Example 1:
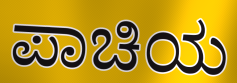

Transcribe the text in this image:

ಪಾಚಿಯ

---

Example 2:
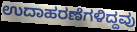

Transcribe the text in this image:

ಉದಾಹರಣೆಗಳಿದ್ದವು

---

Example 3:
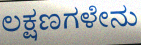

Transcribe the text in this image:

ಲಕ್ಷಣಗಳೇನು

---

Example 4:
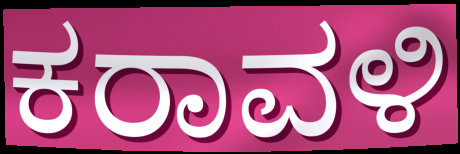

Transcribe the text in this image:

ಕರಾವಳಿ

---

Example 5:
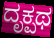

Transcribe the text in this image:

ದೃಕ್ಪಥ